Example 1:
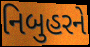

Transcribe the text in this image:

નિબુહરને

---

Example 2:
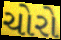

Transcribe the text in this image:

ચોરો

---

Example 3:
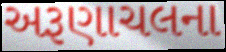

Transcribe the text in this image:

અરૂણાચલના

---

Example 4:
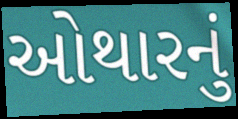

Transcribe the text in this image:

ઓથારનું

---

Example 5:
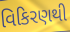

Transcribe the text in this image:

વિકિરણથી